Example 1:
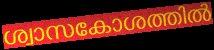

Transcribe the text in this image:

ശ്വാസകോശത്തിൽ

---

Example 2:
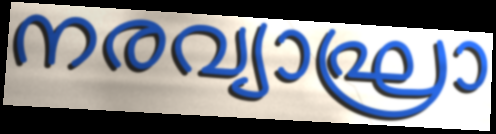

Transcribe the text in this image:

നരവ്യാഘ്രാ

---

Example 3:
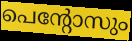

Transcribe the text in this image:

പെന്റോസും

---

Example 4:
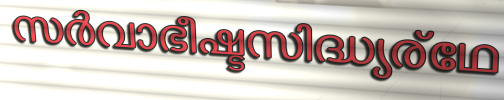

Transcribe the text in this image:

സർവാഭീഷ്ടസിദ്ധ്യര്ഥേ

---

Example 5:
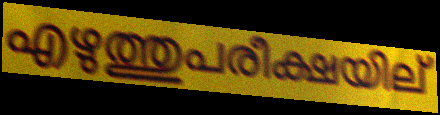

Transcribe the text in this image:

എഴുത്തുപരീക്ഷയില്